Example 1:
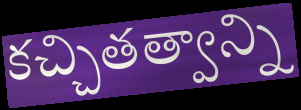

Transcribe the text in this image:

కచ్చితత్వాన్ని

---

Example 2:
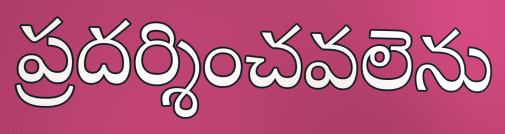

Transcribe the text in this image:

ప్రదర్శించవలెను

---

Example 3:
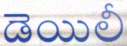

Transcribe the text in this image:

డెయిలీ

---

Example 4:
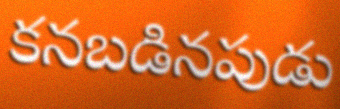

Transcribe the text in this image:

కనబడినపుడు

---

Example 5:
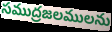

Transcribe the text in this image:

సముద్రజలములను